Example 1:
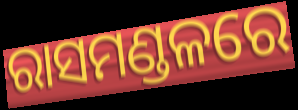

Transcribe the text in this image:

ରାସମଣ୍ଡଳରେ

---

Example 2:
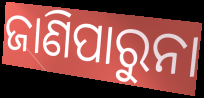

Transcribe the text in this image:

ଜାଣିପାରୁନା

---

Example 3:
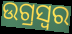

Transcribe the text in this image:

ଉଗ୍ରସ୍ୱର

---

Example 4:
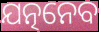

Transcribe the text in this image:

ଯତ୍ନନେବ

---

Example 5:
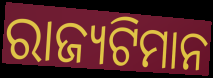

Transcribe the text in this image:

ରାଜ୍ୟଟିମାନ